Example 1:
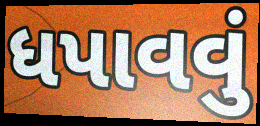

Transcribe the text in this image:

ધપાવવું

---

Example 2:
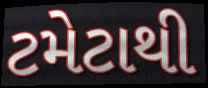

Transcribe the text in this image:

ટમેટાથી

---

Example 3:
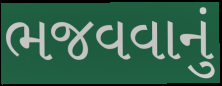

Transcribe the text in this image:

ભજવવાનું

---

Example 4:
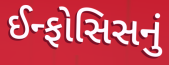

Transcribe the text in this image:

ઈન્ફોસિસનું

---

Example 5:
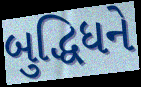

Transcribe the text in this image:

બુદ્ધિધને